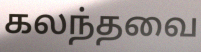
கலந்தவை